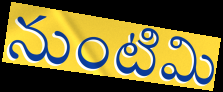
నుంటిమి